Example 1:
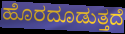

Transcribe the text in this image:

ಹೊರದೂಡುತ್ತದೆ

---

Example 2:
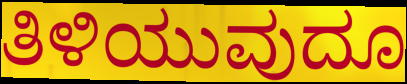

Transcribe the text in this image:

ತಿಳಿಯುವುದೂ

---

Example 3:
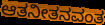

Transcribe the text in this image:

ಆತನೀತನವಂತ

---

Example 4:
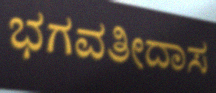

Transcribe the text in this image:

ಭಗವತೀದಾಸ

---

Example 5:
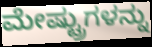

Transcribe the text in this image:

ಮೇಷ್ಟ್ರುಗಳನ್ನು